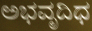
ಅಭವೃದಿಧ